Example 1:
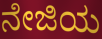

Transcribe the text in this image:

ನೇಜಿಯ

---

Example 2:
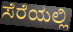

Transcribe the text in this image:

ಸೆರೆಯಲ್ಲಿ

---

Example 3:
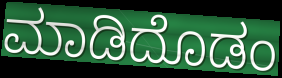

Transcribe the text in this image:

ಮಾಡಿದೊಡಂ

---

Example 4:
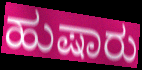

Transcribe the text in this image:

ಹುಷಾರು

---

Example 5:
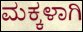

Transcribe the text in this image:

ಮಕ್ಕಳಾಗಿ